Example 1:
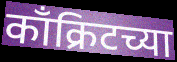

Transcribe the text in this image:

काँक्रिटच्या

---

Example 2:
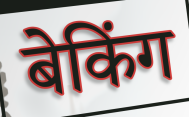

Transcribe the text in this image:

बेकिंग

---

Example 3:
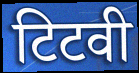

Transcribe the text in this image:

टिटवी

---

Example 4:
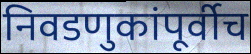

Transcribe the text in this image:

निवडणुकांपूर्वीच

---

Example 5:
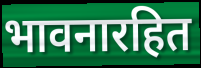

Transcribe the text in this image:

भावनारहित